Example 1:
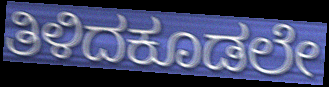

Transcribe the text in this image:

ತಿಳಿದಕೂಡಲೇ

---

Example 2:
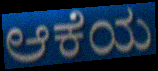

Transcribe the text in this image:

ಆಕೆಯ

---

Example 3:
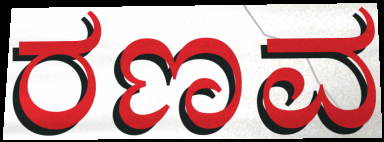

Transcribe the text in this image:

ರಣವ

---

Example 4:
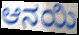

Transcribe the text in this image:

ಆನಯಿ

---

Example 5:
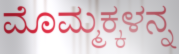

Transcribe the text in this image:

ಮೊಮ್ಮಕ್ಕಳನ್ನ